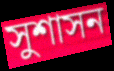
সুশাসন